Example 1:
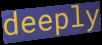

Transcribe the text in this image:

deeply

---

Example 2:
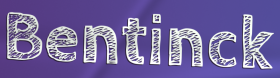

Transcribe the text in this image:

Bentinck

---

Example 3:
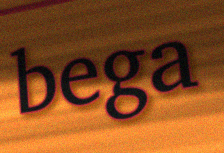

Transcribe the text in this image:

bega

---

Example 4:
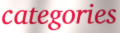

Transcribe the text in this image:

categories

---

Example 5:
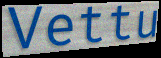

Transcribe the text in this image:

Vettu